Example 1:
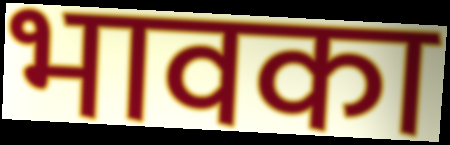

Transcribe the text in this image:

भावका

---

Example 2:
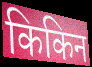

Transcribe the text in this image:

किकिन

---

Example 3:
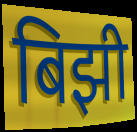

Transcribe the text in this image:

बिझी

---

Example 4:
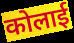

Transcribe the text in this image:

कोलाई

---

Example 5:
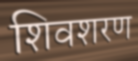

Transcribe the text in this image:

शिवशरण